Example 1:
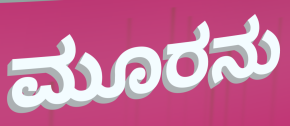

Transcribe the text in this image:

ಮೂರನು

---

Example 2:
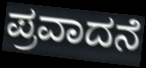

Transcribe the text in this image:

ಪ್ರವಾದನೆ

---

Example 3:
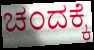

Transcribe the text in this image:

ಚಂದಕ್ಕೆ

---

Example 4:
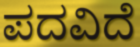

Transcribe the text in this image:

ಪದವಿದೆ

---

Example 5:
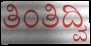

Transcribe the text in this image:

ತಿಂತಿದ್ವಿ